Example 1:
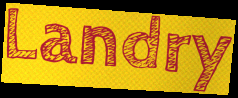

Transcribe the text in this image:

Landry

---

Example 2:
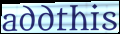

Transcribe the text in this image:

addthis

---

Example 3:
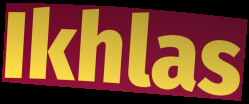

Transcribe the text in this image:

Ikhlas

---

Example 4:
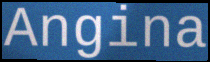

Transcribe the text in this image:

Angina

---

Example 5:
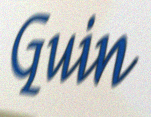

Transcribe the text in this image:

Guin